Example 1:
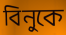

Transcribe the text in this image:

বিনুকে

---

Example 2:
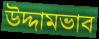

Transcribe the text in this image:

উদ্দামভাব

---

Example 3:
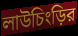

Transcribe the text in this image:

লাউচিংড়ির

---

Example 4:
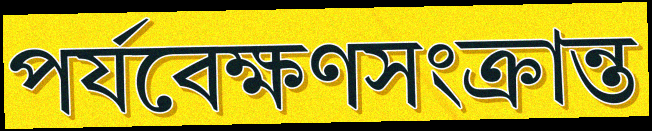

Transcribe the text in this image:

পর্যবেক্ষণসংক্রান্ত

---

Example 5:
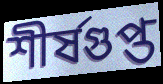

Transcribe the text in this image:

শীর্ষগুপ্ত